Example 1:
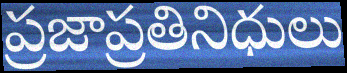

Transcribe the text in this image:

ప్రజాప్రతినిధులు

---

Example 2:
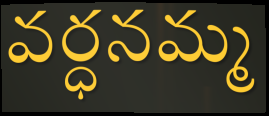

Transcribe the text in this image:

వర్ధనమ్మ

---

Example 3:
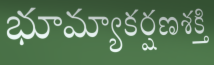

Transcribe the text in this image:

భూమ్యాకర్షణశక్తి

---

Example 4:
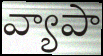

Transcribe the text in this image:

వ్యాపా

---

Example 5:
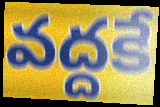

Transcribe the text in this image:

వద్దకే